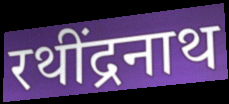
रथींद्रनाथ